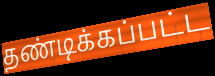
தண்டிக்கப்பட்ட